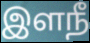
இளநீ